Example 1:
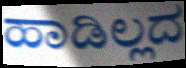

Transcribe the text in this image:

ಹಾಡಿಲ್ಲದ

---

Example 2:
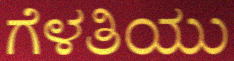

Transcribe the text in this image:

ಗೆಳತಿಯು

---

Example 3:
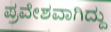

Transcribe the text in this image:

ಪ್ರವೇಶವಾಗಿದ್ದು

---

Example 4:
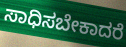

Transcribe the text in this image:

ಸಾಧಿಸಬೇಕಾದರೆ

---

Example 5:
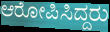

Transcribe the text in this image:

ಆರೋಪಿಸಿದ್ದರು